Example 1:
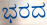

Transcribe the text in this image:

ಭರದ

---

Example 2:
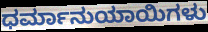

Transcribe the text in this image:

ಧರ್ಮಾನುಯಾಯಿಗಳು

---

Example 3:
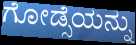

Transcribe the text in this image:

ಗೋಡ್ಸೆಯನ್ನು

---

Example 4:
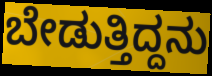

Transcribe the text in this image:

ಬೇಡುತ್ತಿದ್ದನು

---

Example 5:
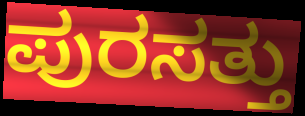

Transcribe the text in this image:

ಪುರಸತ್ತು